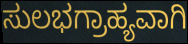
ಸುಲಭಗ್ರಾಹ್ಯವಾಗಿ